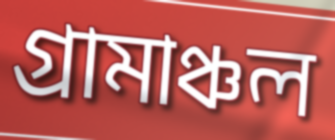
গ্রামাঞ্চল